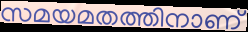
സമയമതത്തിനാണ്